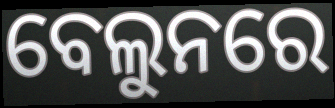
ବେଲୁନରେ